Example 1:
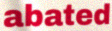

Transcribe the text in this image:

abated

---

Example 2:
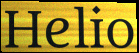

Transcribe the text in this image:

Helio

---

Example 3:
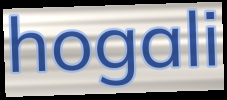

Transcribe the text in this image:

hogali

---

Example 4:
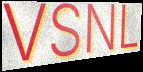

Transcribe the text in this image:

VSNL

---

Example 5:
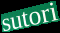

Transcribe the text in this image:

sutori